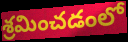
శ్రమించడంలో